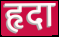
हृदा